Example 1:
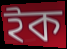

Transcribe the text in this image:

ইক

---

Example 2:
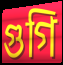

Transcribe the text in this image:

গুগি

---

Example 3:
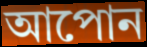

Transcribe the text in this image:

আপোন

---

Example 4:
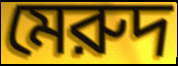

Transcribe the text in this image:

মেরুদ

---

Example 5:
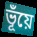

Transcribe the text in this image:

ভূঁয়ে